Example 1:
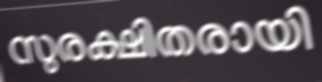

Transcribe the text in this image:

സുരക്ഷിതരായി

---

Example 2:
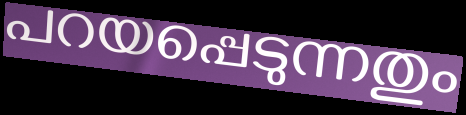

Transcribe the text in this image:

പറയപ്പെടുന്നതും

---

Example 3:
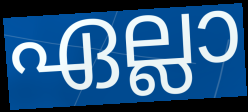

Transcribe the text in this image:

ഏല്ലാ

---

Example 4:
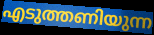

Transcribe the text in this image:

എടുത്തണിയുന്ന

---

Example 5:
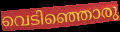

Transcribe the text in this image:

വെടിഞ്ഞൊരു